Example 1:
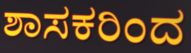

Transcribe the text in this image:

ಶಾಸಕರಿಂದ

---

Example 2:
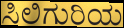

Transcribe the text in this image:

ಸಿಲಿಗುರಿಯ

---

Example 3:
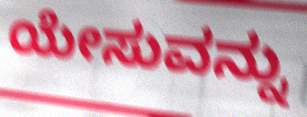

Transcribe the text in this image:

ಯೇಸುವನ್ನು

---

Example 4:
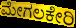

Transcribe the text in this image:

ಮೇಗಲಕೇರಿ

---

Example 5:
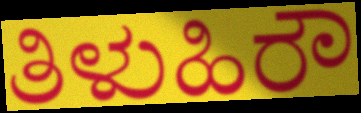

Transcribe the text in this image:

ತಿಳುಹಿರೌ